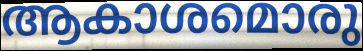
ആകാശമൊരു